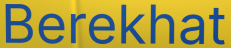
Berekhat